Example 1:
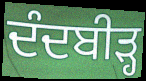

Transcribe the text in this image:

ਦੰਦਬੀੜ੍ਹ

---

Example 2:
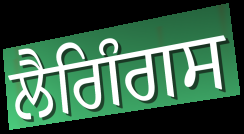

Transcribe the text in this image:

ਲੈਗਿੰਗਸ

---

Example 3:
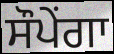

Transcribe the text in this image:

ਸੌਪੇਂਗਾ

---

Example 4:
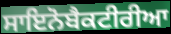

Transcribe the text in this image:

ਸਾਇਨੋਬੈਕਟੀਰੀਆ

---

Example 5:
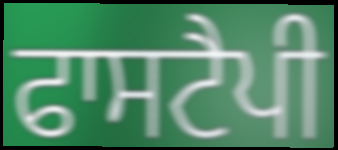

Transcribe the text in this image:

ਫਾਸਟੈਪੀ